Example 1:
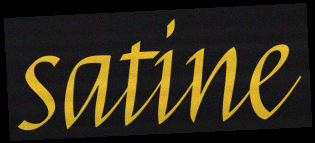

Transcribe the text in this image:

satine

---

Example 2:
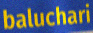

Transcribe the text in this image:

baluchari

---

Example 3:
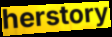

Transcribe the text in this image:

herstory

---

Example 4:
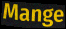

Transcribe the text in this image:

Mange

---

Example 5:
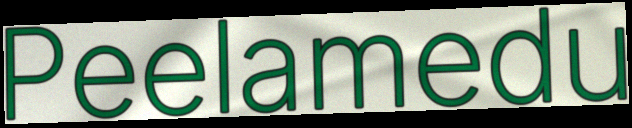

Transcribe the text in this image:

Peelamedu